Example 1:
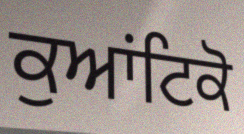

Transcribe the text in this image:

ਕੁਆਂਟਿਕੋ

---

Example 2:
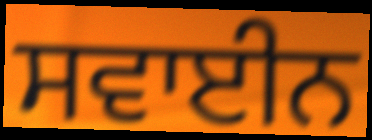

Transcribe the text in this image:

ਸਵਾਈਨ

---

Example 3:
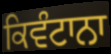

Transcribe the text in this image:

ਕਿਵੰਟਾਨਾ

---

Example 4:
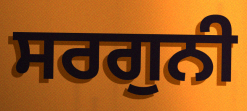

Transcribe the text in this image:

ਸਰਗੁਨੀ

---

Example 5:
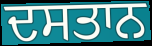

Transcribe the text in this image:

ਦਸਤਾਨ